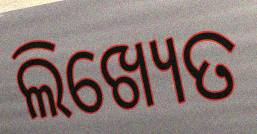
ଲିଖ୍ଯେତ